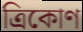
ত্ৰিকোণ